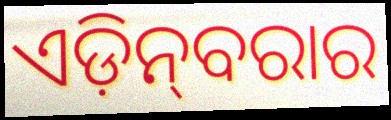
ଏଡ଼ିନ୍‍ବରାର